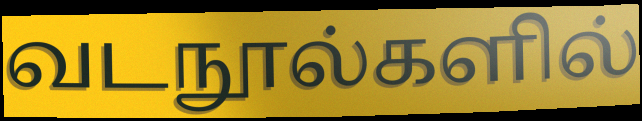
வடநூல்களில்